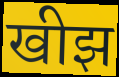
खीझ